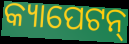
କ୍ୟାପେଟନ୍